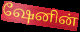
ஷேனின்